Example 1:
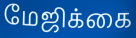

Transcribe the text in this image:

மேஜிக்கை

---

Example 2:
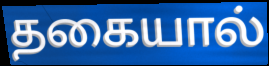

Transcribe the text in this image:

தகையால்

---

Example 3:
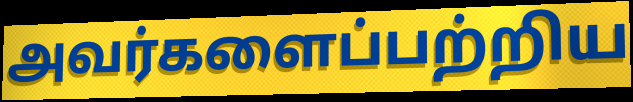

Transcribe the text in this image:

அவர்களைப்பற்றிய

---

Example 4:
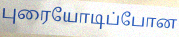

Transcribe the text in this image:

புரையோடிப்போன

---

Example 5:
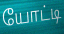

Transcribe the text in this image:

யோட்டி